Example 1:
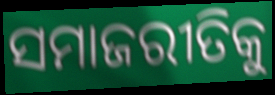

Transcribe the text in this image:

ସମାଜରୀତିକୁ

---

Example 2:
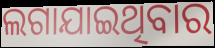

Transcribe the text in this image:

ଲଗାଯାଇଥିବାର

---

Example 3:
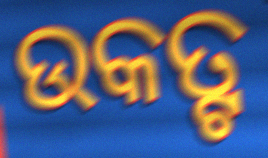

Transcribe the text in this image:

ଉକତ୍ଟ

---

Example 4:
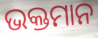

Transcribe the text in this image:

ଭକ୍ତମାନ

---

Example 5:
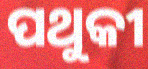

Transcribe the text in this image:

ପଥୁକୀ